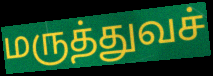
மருத்துவச்